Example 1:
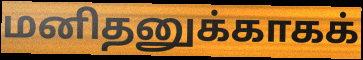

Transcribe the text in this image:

மனிதனுக்காகக்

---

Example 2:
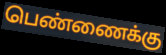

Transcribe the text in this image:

பெண்ணைக்கு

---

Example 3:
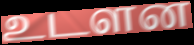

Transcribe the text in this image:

உடளன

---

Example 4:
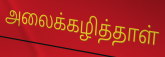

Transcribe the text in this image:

அலைக்கழித்தாள்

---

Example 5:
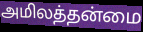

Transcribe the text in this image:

அமிலத்தன்மை